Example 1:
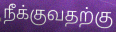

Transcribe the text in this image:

நீக்குவதற்கு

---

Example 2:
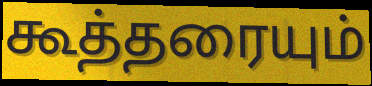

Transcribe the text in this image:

கூத்தரையும்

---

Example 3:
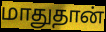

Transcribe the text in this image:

மாதுதான்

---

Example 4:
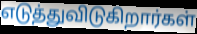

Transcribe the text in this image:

எடுத்துவிடுகிறார்கள்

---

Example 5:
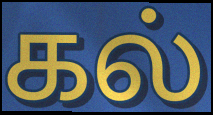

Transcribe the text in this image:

கல்